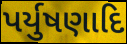
પર્યુષણાદિ